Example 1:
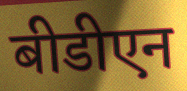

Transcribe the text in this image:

बीडीएन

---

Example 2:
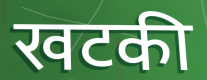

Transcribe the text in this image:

खटकी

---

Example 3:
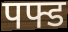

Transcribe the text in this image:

पफ्ड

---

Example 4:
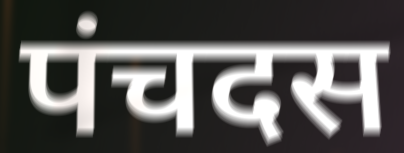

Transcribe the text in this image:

पंचदस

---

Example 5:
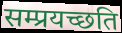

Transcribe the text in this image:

सम्प्रयच्छति